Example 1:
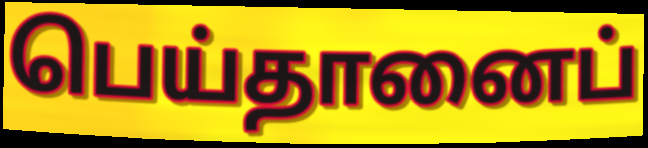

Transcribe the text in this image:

பெய்தானைப்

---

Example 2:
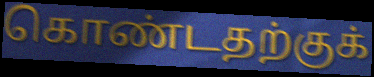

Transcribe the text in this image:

கொண்டதற்குக்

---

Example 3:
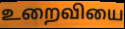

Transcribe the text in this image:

உறைவியை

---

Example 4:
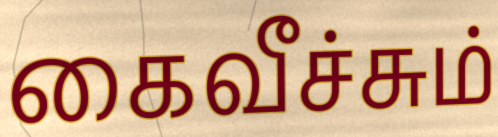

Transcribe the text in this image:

கைவீச்சும்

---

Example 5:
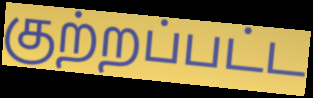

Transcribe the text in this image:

குற்றப்பட்ட